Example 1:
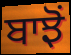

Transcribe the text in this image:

ਬਾਝੋਂ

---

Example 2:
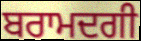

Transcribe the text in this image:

ਬਰਾਮਦਗੀ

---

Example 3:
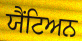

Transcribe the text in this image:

ਯੈਂਟਿਅਨ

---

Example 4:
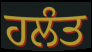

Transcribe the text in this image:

ਹਲੰਤ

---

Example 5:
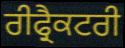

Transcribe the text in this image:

ਰੀਫ੍ਰੈਕਟਰੀ